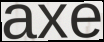
axe